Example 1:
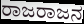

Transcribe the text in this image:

ರಾಜರಾಜನ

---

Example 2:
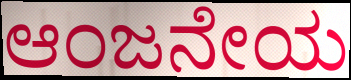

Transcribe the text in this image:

ಆಂಜನೇಯ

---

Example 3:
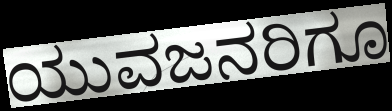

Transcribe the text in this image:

ಯುವಜನರಿಗೂ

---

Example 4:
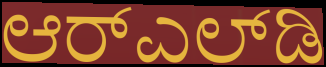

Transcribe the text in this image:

ಆರ್‌ಎಲ್‌ಡಿ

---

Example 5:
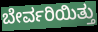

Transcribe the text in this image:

ಬೇರ್ವರಿಯಿತ್ತು